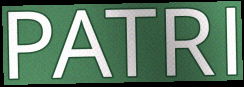
PATRI